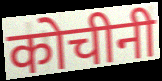
कोचीनी